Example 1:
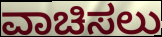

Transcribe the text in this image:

ವಾಚಿಸಲು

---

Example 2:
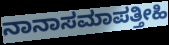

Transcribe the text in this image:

ನಾನಾಸಮಾಪತ್ತೀಹಿ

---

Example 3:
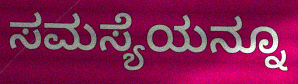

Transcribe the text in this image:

ಸಮಸ್ಯೆಯನ್ನೂ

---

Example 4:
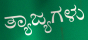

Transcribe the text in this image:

ತ್ಯಾಜ್ಯಗಳು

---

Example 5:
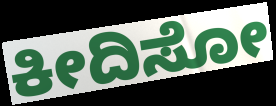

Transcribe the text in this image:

ಕೀದಿಸೋ